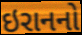
ઇરાનનો